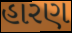
હારણ